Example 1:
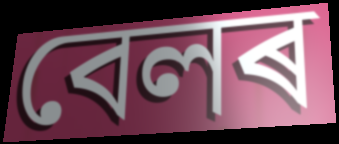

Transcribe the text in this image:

বেলৰ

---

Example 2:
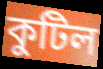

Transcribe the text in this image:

কুটিল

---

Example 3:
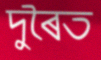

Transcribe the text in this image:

দুৰৈত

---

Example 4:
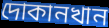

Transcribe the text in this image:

দোকানখান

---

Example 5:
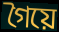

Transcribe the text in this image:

গৈয়ে